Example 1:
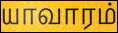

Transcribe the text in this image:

யாவாரம்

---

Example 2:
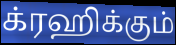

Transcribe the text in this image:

க்ரஹிக்கும்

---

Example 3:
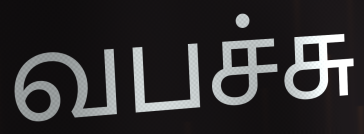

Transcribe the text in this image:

வபச்சு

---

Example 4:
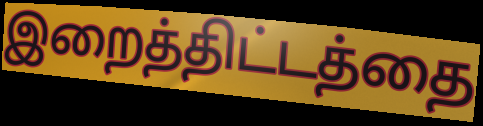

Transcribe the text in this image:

இறைத்திட்டத்தை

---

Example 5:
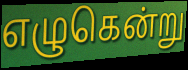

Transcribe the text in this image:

எழுகென்று